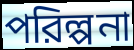
পরিল্পনা